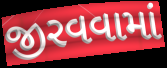
જીરવવામાં